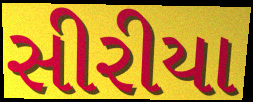
સીરીયા